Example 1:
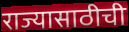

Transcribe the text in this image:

राज्यासाठीची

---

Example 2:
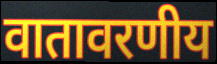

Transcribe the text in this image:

वातावरणीय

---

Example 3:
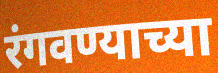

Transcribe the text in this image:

रंगवण्याच्या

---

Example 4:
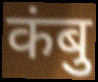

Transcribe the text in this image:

कंबु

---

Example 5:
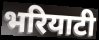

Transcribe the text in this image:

भरियाटी